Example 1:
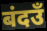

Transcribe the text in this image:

बंदउँ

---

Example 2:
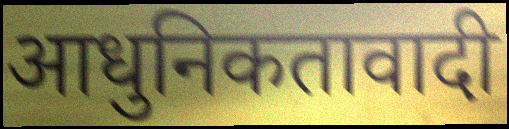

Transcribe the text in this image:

आधुनिकतावादी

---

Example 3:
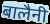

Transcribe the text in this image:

बालैनी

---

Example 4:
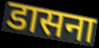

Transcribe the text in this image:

डासना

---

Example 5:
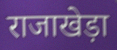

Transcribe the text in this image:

राजाखेड़ा